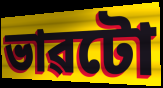
ভাৱটো